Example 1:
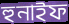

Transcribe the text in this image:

হুনাইফ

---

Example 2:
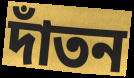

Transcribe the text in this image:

দাঁতন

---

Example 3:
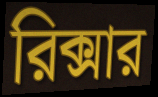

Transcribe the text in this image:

রিক্সার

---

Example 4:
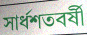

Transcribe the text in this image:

সার্ধশতবর্ষী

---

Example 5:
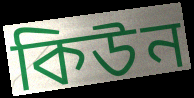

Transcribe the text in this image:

কিউন